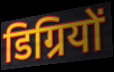
डिग्रियों